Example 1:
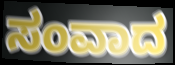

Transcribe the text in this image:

ಸಂವಾದ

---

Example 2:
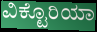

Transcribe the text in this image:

ವಿಕ್ಟೊರಿಯಾ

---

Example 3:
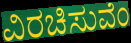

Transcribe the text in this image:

ವಿರಚಿಸುವೆಂ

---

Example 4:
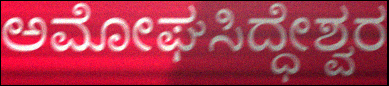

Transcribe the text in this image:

ಅಮೋಘಸಿದ್ಧೇಶ್ವರ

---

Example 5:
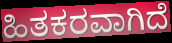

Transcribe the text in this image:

ಹಿತಕರವಾಗಿದೆ